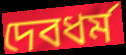
দেবধর্ম